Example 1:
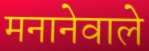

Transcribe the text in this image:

मनानेवाले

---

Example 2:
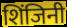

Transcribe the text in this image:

शिंजिनी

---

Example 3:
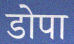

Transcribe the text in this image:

डोपा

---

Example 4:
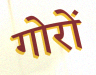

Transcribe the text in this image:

गोरों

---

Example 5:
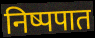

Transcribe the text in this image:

निष्पपात